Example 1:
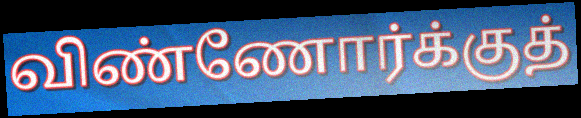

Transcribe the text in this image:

விண்ணோர்க்குத்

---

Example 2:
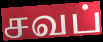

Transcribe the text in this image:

சவப்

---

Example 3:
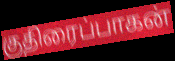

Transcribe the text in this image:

குதிரைப்பாகன்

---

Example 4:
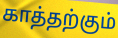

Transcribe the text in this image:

காத்தற்கும்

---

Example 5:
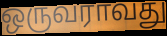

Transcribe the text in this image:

ஒருவராவது